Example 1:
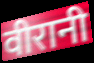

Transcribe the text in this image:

वीरानी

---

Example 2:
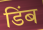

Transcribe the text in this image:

डिंब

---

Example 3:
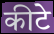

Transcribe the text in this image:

कीटे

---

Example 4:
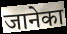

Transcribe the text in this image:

जानेका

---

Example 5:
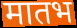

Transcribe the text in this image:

मातभ